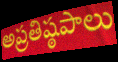
అప్రతిష్ఠపాలు